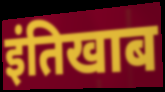
इंतिखाब